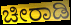
ಚೀರಾಡಿ